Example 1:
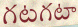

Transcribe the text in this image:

గటగటా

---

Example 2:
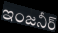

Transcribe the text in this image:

ఇంజనీర్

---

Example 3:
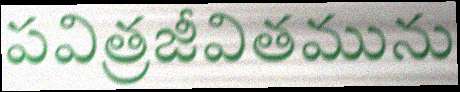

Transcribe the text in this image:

పవిత్రజీవితమును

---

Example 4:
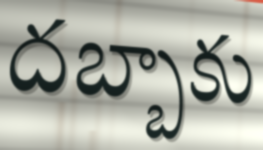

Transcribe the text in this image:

దబ్బాకు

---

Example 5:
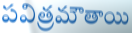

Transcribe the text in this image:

పవిత్రమౌతాయి